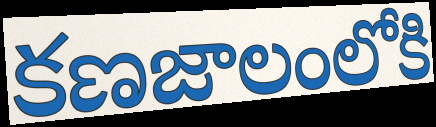
కణజాలంలోకి